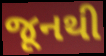
જૂનથી